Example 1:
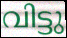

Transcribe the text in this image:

വിട്ടു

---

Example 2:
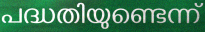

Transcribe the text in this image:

പദ്ധതിയുണ്ടെന്ന്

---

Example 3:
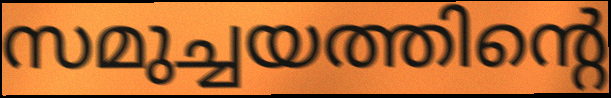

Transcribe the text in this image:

സമുച്ചയത്തിന്റെ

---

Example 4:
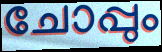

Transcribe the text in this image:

ചോപ്പും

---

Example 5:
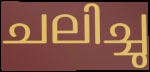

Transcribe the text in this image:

ചലിച്ചു